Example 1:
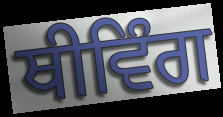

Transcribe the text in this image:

ਥੀਵਿੰਗ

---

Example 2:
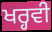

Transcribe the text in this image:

ਖਰ੍ਹਵੀ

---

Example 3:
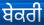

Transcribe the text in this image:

ਬੇਕਰੀ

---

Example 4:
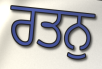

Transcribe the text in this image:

ਰਤਨੁ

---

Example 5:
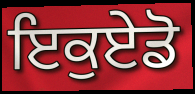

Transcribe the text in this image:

ਇਕੁਏਡੋ